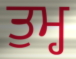
ਤੁਮ੍ਹ੍ਹ